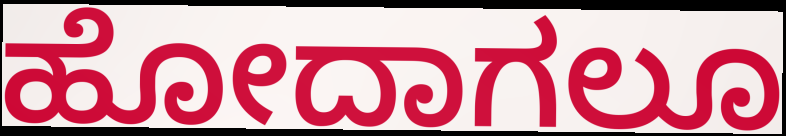
ಹೋದಾಗಲೂ